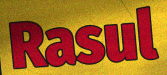
Rasul